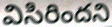
విసిరిందని